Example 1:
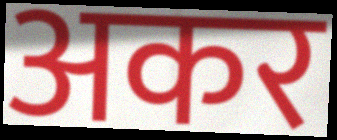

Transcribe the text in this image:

अकर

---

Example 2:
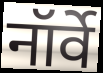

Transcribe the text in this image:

नॉर्वे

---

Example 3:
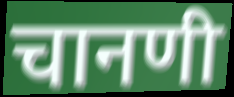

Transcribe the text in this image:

चानणी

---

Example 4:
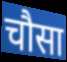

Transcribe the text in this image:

चौसा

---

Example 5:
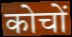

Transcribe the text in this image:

कोचों